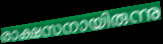
രാക്ഷസനായിരുന്നു